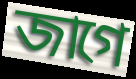
জাগে